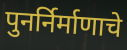
पुनर्निर्माणाचे